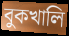
বুকখালি